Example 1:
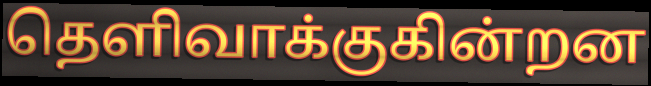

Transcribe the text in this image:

தெளிவாக்குகின்றன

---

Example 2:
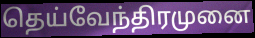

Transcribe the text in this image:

தெய்வேந்திரமுனை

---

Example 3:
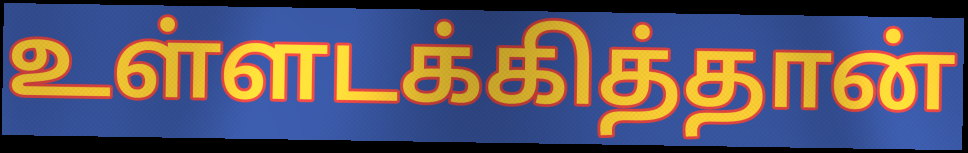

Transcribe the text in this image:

உள்ளடக்கித்தான்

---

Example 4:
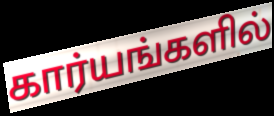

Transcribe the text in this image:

கார்யங்களில்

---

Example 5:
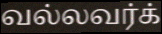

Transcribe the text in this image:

வல்லவர்க்